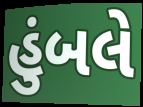
હુંબલે